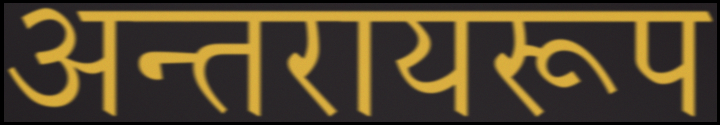
अन्तरायरूप